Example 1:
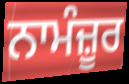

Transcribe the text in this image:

ਨਾਮੰਜ਼ੂਰ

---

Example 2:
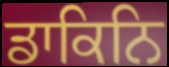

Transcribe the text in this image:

ਡਾਕਿਨਿ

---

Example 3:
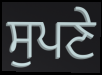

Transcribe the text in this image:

ਸੁਪਣੇ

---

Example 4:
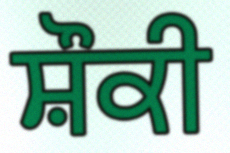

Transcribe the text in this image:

ਸ਼ੌਕੀ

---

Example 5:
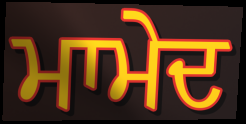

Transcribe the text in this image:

ਮਾਮੇਦ